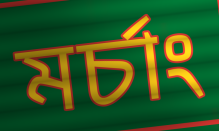
মৰ্চাং